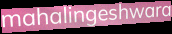
mahalingeshwara